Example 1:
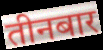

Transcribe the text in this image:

तीनबार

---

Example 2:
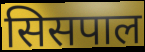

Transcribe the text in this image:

सिसपाल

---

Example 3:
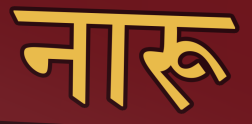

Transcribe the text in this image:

नारू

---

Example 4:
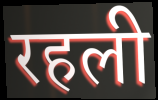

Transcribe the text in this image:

रहली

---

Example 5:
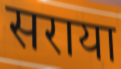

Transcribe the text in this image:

सराया